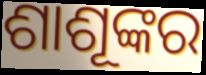
ଶାଶୂଙ୍କର